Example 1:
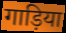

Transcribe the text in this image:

गाड़िया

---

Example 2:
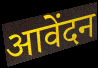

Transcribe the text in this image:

आवेंदन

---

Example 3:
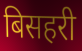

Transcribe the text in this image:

बिसहरी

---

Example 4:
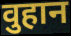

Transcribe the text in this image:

वुहान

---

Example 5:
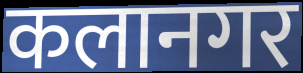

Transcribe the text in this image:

कलानगर